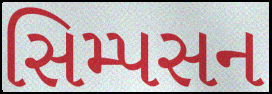
સિમ્પસન